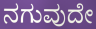
ನಗುವುದೇ